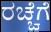
ರಚ್ಚೆಗೆ